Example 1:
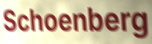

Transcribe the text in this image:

Schoenberg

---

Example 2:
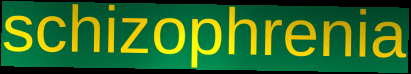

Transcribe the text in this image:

schizophrenia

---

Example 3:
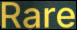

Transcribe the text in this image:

Rare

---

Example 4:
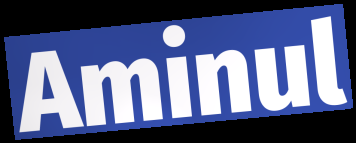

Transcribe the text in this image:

Aminul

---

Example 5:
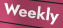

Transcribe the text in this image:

Weekly